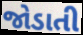
જોડાતી